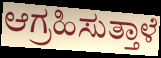
ಆಗ್ರಹಿಸುತ್ತಾಳೆ